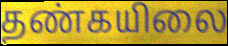
தண்கயிலை